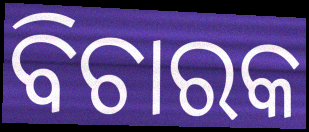
ବିଚାରକ